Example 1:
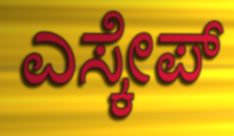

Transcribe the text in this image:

ಎಸ್ಕೇಪ್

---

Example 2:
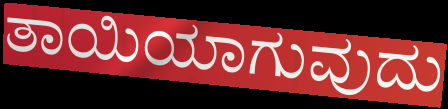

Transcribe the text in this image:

ತಾಯಿಯಾಗುವುದು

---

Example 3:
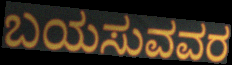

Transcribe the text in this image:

ಬಯಸುವವರ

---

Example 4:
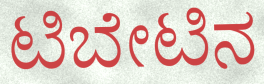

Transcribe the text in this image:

ಟಿಬೇಟಿನ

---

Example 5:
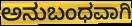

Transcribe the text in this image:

ಅನುಬಂಧವಾಗಿ